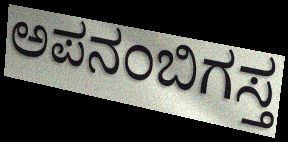
ಅಪನಂಬಿಗಸ್ತ